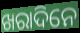
ଖରାଦିନେ